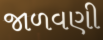
જાળવણી